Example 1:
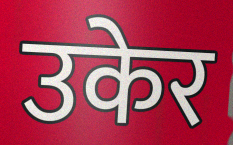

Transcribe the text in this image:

उकेर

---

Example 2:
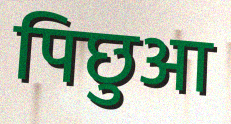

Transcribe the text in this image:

पिछुआ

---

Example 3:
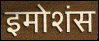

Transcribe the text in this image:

इमोशंस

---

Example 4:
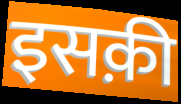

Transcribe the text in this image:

इसक़ी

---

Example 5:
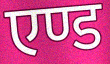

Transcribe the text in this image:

एण्ड